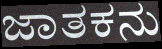
ಜಾತಕನು